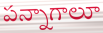
పన్నాగాలూ